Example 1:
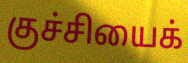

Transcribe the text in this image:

குச்சியைக்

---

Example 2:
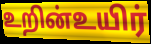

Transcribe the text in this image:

உறின்உயிர்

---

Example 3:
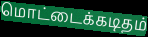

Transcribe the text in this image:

மொட்டைக்கடிதம்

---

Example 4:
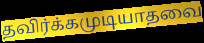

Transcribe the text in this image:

தவிர்க்கமுடியாதவை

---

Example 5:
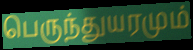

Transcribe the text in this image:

பெருந்துயரமும்